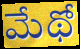
మేథో